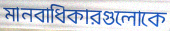
মানবাধিকারগুলোকে